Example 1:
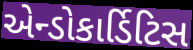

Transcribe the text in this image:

એન્ડોકાર્ડિટિસ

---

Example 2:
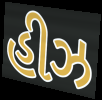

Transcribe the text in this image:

હીઝ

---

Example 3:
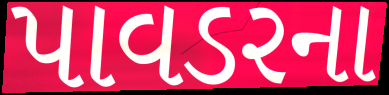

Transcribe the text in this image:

પાવડરના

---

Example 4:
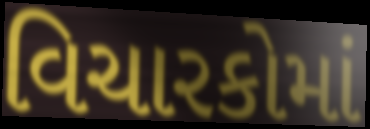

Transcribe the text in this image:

વિચારકોમાં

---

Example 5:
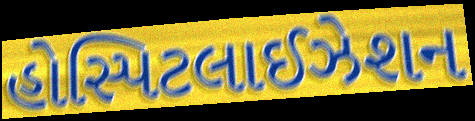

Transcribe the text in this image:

હોસ્પિટલાઈઝેશન